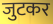
जुटकर